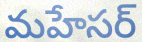
మహేసర్